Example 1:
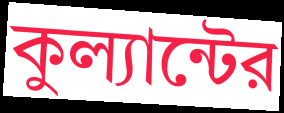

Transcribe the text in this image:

কুল্যান্টের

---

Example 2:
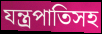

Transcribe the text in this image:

যন্ত্রপাতিসহ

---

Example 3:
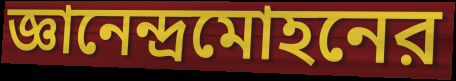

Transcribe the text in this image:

জ্ঞানেন্দ্রমোহনের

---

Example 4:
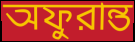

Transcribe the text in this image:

অফুরান্ত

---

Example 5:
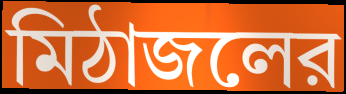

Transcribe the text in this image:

মিঠাজলের